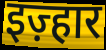
इज़्हार